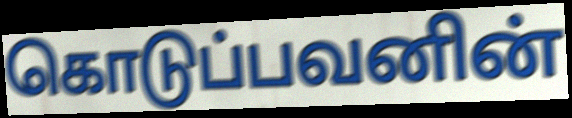
கொடுப்பவனின்